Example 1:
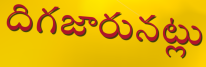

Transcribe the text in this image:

దిగజారునట్లు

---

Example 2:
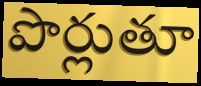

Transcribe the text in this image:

పొర్లుతూ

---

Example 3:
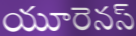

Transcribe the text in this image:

యూరెనస్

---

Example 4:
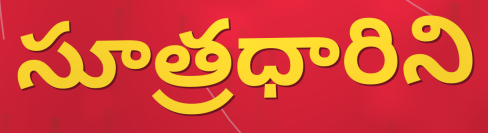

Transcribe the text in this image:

సూత్రధారిని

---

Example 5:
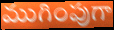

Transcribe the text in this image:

ముగింపుగా